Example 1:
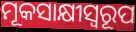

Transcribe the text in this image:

ମୂକସାକ୍ଷୀସ୍ୱରୂପ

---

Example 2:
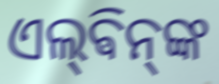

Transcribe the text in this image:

ଏଲ୍‌ଵିନ୍‌ଙ୍କ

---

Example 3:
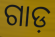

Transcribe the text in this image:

ଗାଡ଼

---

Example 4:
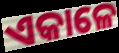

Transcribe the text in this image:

ଏକାଳେ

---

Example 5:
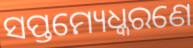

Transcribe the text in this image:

ସପ୍ତମ୍ୟେଧ୍କରଣେ